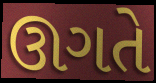
ઊગતે